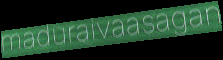
maduraivaasagan